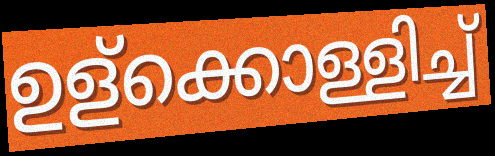
ഉള്ക്കൊള്ളിച്ച്